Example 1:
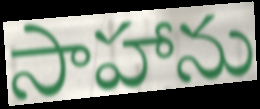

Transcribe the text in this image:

సాహాను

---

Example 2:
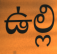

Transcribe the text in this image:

ఉల్లి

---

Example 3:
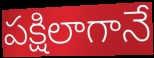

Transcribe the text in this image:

పక్షిలాగానే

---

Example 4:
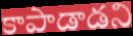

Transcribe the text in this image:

కాపాడాడని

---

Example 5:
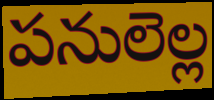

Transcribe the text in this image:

పనులెల్ల